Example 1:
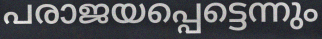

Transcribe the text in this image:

പരാജയപ്പെട്ടെന്നും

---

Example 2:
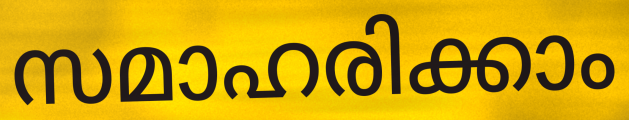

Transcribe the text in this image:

സമാഹരിക്കാം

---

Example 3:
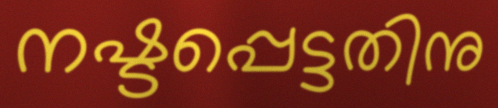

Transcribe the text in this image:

നഷ്ടപ്പെട്ടതിനു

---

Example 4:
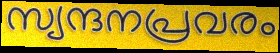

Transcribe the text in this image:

സ്യന്ദനപ്രവരം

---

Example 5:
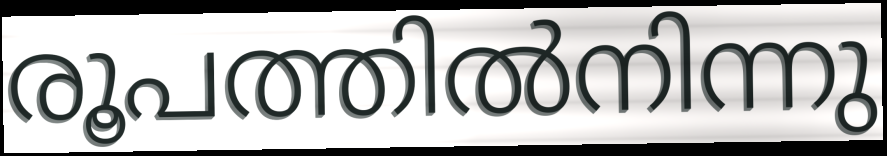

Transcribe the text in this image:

രൂപത്തിൽനിന്നു